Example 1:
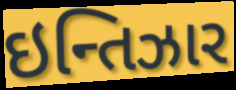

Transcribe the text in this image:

ઇન્તિઝાર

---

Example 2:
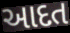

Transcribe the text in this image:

આદત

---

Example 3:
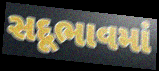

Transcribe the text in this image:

સદૂભાવમાં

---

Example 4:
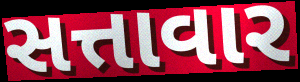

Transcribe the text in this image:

સત્તાવાર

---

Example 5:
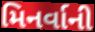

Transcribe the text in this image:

મિનર્વાની